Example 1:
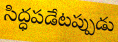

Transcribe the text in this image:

సిద్ధపడేటప్పుడు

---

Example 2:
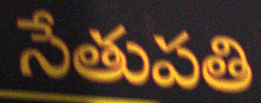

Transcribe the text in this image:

సేతుపతి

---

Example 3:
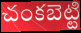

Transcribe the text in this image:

చంకబెట్టి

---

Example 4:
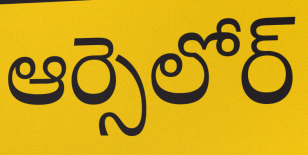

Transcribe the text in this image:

ఆర్సెలోర్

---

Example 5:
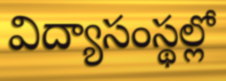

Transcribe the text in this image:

విద్యాసంస్థల్లో